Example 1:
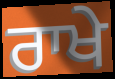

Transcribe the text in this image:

ਰਾਖੇ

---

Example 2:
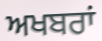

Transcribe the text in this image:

ਅਖਬਰਾਂ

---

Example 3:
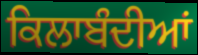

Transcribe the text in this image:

ਕਿਲਾਬੰਦੀਆਂ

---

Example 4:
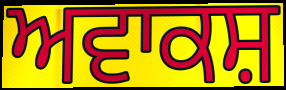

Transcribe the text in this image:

ਅਵਾਕਸ਼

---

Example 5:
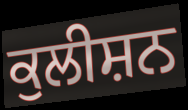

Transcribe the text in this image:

ਕੁਲੀਸ਼ਨ